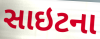
સાઇટના